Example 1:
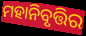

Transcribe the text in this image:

ମହାନିବୃତ୍ତିର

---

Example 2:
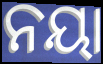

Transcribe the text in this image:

ନୟା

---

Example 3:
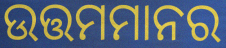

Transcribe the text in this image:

ଉତ୍ତମମାନର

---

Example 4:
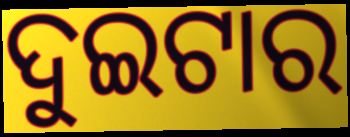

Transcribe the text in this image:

ଦୁଇଟାର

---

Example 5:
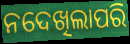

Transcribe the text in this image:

ନଦେଖିଲାପରି